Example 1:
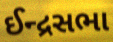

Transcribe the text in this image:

ઈન્દ્રસભા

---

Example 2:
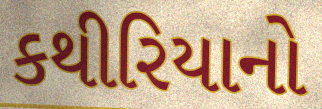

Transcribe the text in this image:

કથીરિયાનો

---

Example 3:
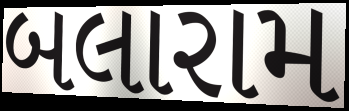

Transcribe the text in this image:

બલારામ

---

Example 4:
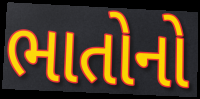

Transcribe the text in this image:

ભાતોનો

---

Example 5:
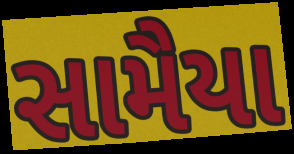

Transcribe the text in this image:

સામૈયા